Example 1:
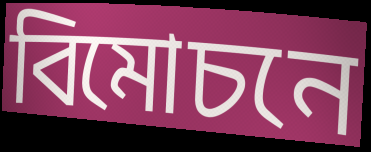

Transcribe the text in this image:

বিমোচনে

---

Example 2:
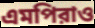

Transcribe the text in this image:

এমপিরাও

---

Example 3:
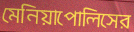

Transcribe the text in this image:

মেনিয়াপোলিসের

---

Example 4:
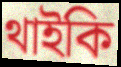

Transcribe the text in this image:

থাইকি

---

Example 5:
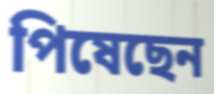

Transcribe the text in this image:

পিষেছেন